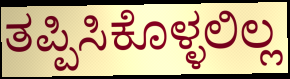
ತಪ್ಪಿಸಿಕೊಳ್ಳಲಿಲ್ಲ